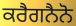
ਕਰੈਗਨੈਨੋ